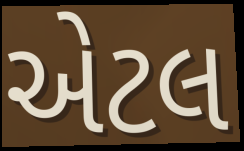
એટલ